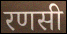
रणसी